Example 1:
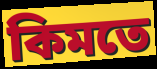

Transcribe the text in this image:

কিমতে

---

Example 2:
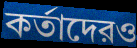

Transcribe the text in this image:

কর্তাদেরও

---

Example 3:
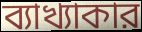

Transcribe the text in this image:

ব্যাখ্যাকার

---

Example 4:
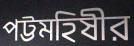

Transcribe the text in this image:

পট্টমহিষীর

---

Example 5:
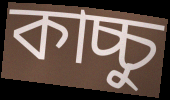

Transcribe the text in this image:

কাচ্চু